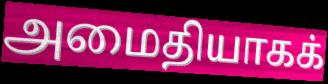
அமைதியாகக்